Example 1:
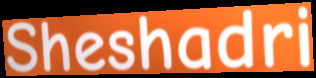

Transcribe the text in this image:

Sheshadri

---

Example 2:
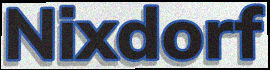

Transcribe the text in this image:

Nixdorf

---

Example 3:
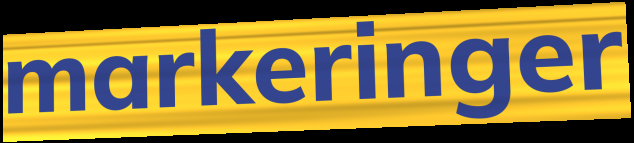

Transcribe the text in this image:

markeringer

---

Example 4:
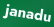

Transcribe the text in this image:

janadu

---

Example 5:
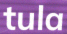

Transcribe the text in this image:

tula